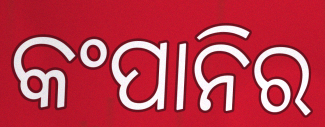
କଂପାନିର